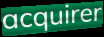
acquirer